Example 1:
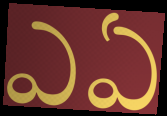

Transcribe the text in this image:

ఎఏ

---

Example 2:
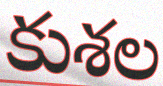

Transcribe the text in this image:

కుశల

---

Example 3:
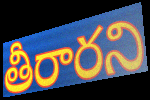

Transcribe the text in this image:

తీరారని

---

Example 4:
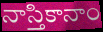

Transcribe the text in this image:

నాస్తికానాం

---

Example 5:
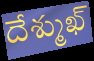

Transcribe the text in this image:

దేశ్ముఖ్